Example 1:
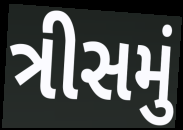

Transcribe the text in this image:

ત્રીસમું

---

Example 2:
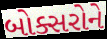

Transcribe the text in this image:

બોક્સરોને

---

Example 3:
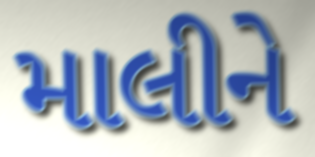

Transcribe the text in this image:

માલીને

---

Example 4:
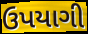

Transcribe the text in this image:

ઉપયાગી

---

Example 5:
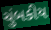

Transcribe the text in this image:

ચુંબકીય